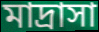
মাদ্রাসা